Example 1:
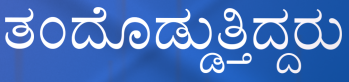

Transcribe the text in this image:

ತಂದೊಡ್ಡುತ್ತಿದ್ದರು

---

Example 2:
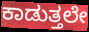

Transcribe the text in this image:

ಕಾಡುತ್ತಲೇ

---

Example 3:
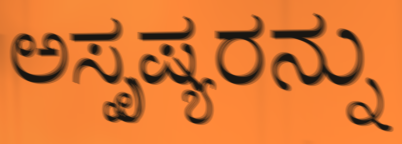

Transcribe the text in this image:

ಅಸ್ಪೃಷ್ಯರನ್ನು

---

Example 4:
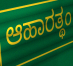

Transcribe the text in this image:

ಆಹಾರತ್ಥಂ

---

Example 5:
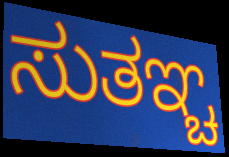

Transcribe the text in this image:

ಸುತಞ್ಚ